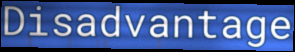
Disadvantage